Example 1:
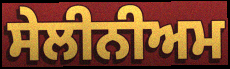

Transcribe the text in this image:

ਸੇਲੀਨੀਅਮ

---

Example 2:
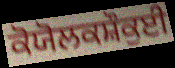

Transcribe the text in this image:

ਕੋਯੋਲਕਸ਼ੌਕੁਈ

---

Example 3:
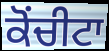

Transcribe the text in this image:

ਕੋਂਚੀਟਾ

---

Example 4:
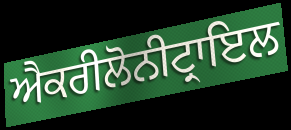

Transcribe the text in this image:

ਐਕਰੀਲੋਨੀਟ੍ਰਾਇਲ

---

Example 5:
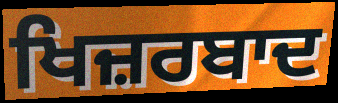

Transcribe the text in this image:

ਖਿਜ਼ਰਬਾਦ